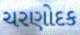
ચરણોદક